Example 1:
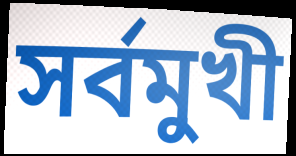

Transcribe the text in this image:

সর্বমুখী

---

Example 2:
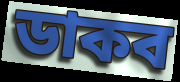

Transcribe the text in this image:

ডাকব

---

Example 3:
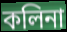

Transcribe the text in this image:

কলিনা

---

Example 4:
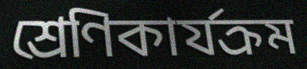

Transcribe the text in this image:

শ্রেণিকার্যক্রম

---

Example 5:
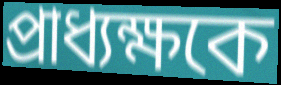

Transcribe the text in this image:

প্রাধ্যক্ষকে